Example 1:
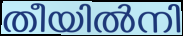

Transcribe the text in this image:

തീയിൽനി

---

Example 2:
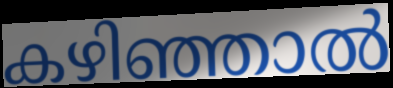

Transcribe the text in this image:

കഴിഞ്ഞാൽ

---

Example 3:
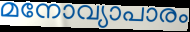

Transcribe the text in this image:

മനോവ്യാപാരം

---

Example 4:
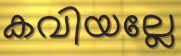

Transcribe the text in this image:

കവിയല്ലേ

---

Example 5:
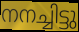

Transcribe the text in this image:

നനച്ചിട്ടു